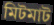
মিটমাট